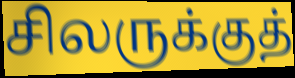
சிலருக்குத்